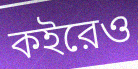
কইরেও